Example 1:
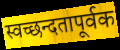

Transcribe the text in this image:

स्वच्छन्दतापूर्वक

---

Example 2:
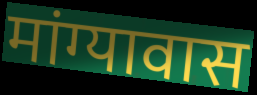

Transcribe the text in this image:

मांग्यावास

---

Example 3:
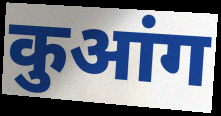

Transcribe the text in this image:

कुआंग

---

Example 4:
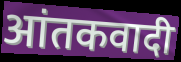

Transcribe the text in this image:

आंतकवादी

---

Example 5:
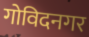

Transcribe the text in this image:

गोविदनगर